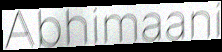
Abhimaani